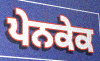
ਪੇਨਕੇਕ